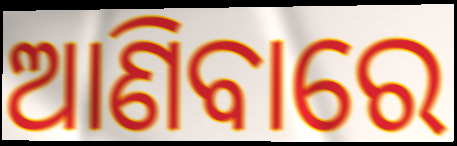
ଆଣିବାରେ